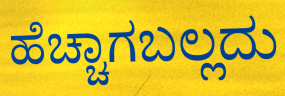
ಹೆಚ್ಚಾಗಬಲ್ಲದು